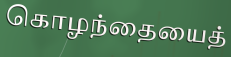
கொழந்தையைத்